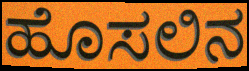
ಹೊಸಲಿನ